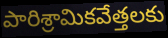
పారిశ్రామికవేత్తలకు